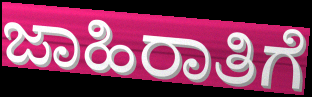
ಜಾಹಿರಾತಿಗೆ